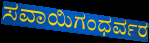
ಸವಾಯಿಗಂಧರ್ವರ